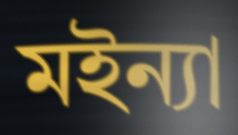
মইন্যা